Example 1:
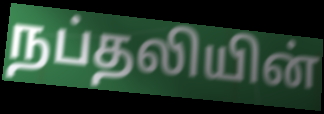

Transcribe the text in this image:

நப்தலியின்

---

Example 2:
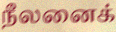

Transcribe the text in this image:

நீலனைக்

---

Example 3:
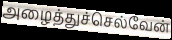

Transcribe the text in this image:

அழைத்துச்செல்வேன்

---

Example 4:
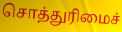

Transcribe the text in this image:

சொத்துரிமைச்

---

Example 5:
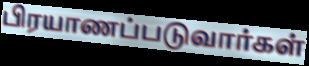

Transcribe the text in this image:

பிரயாணப்படுவார்கள்